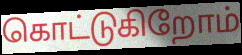
கொட்டுகிறோம்